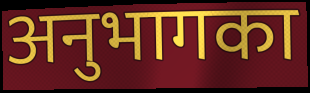
अनुभागका